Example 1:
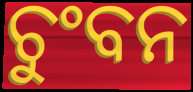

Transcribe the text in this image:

ଚୁଂବନ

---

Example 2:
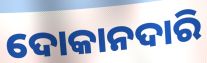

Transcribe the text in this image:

ଦୋକାନଦାରି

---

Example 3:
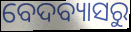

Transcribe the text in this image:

ବେଦବ୍ୟାସରୁ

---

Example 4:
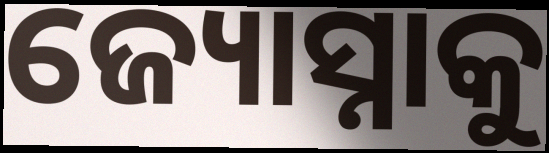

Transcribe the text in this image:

ଜ୍ୟୋସ୍ନାକୁ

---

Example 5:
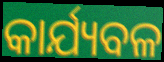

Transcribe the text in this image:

କାର୍ଯ୍ୟବଳ